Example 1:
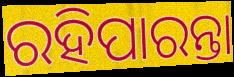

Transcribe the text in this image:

ରହିପାରନ୍ତା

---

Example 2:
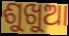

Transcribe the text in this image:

ଶୁଖୁଆ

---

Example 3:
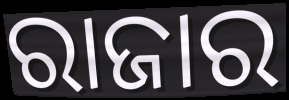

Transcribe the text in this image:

ରାଜାର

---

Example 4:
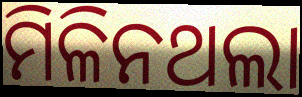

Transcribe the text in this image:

ମିଳିନଥଲା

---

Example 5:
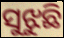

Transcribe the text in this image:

ସୁଝୁଛି